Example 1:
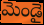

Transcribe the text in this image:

మెండై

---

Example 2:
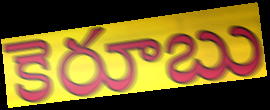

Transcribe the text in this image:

కెరూబు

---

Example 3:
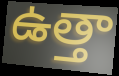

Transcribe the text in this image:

ఉత్తా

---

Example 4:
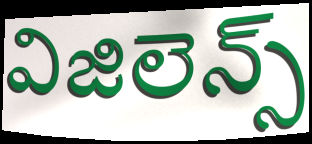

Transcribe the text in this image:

విజిలెన్స్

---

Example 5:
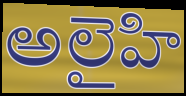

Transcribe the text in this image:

అలైహి